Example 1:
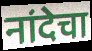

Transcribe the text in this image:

नांदेचा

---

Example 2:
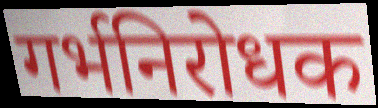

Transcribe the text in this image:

गर्भनिरोधक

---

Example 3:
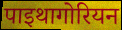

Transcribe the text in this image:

पाइथागोरियन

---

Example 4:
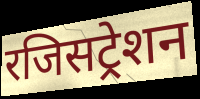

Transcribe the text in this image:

रजिसट्रेशन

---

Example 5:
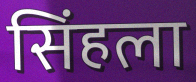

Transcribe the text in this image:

सिंहला